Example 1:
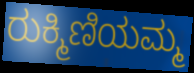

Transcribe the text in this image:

ರುಕ್ಮಿಣಿಯಮ್ಮ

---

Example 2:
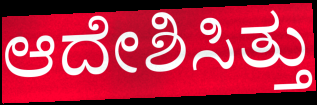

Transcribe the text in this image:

ಆದೇಶಿಸಿತ್ತು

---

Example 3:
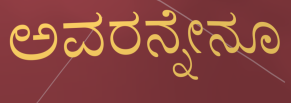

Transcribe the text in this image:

ಅವರನ್ನೇನೂ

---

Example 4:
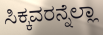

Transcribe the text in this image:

ಸಿಕ್ಕವರನ್ನೆಲ್ಲಾ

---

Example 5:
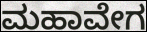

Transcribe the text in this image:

ಮಹಾವೇಗ